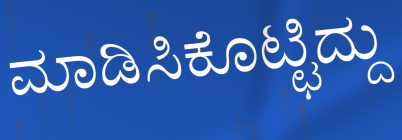
ಮಾಡಿಸಿಕೊಟ್ಟಿದ್ದು